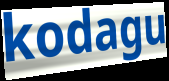
kodagu